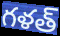
గళత్